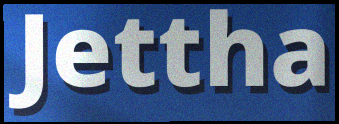
Jettha